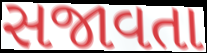
સજાવતા